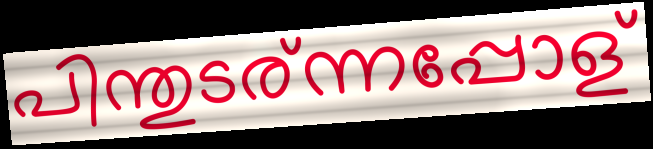
പിന്തുടര്ന്നപ്പോള്